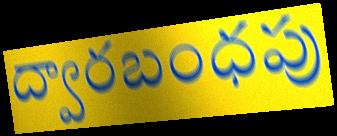
ద్వారబంధపు